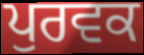
ਪੁਰਵਕ